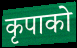
कृपाको